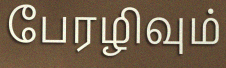
பேரழிவும்